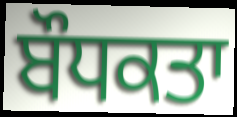
ਬੌਧਕਤਾ